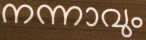
നന്നാവും